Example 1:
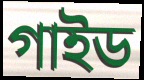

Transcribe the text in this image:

গাইড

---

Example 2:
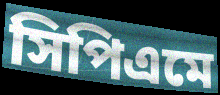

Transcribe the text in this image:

সিপিএমে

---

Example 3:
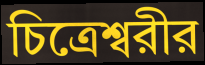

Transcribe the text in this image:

চিত্রেশ্বরীর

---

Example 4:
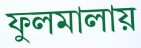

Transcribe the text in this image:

ফুলমালায়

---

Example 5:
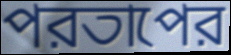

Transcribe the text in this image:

পরতাপের